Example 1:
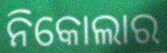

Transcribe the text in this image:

ନିକୋଲାର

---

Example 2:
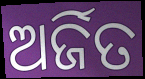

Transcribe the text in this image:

ଅର୍ଜିତ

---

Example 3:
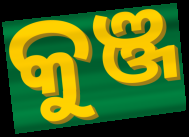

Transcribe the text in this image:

କୁଞ୍ଜ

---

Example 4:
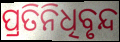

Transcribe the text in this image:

ପ୍ରତିନିଧିବୃନ୍ଦ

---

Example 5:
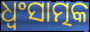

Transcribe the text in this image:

ଧ୍ଵଂସାତ୍ମକ